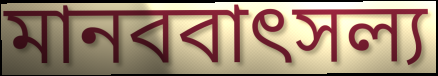
মানববাৎসল্য